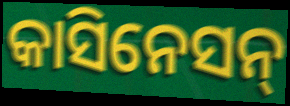
କାସିନେସନ୍